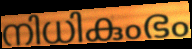
നിധികുംഭം